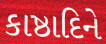
કાષ્ઠાદિને